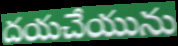
దయచేయును